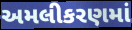
અમલીકરણમાં